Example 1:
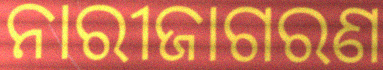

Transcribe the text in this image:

ନାରୀଜାଗରଣ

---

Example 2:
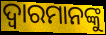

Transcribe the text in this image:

ଦ୍ୱାରମାନଙ୍କୁ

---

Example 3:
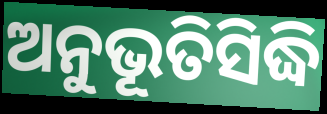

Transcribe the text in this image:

ଅନୁଭୂତିସିଦ୍ଧି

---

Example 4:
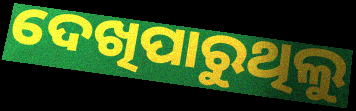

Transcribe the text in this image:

ଦେଖିପାରୁଥିଲୁ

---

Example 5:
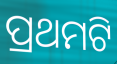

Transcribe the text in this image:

ପ୍ରଥମଟି